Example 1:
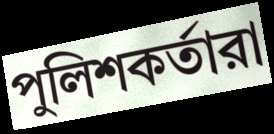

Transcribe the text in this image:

পুলিশকর্তারা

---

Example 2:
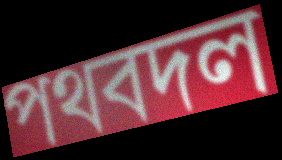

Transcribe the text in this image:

পথবদল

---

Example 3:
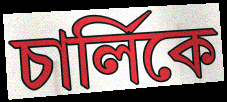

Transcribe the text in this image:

চার্লিকে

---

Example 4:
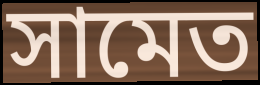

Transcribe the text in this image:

সামেত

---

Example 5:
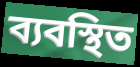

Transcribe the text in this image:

ব্যবস্থিত